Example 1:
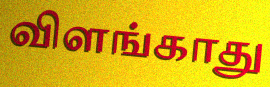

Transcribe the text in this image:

விளங்காது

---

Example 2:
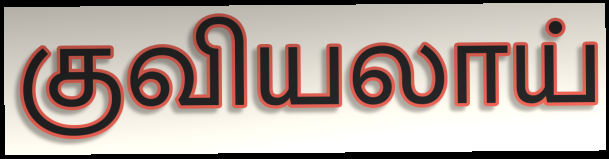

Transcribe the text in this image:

குவியலாய்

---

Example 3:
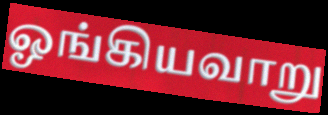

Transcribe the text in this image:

ஓங்கியவாறு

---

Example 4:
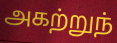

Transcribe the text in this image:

அகற்றுந்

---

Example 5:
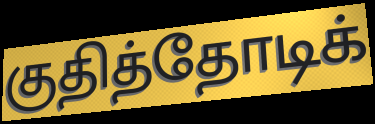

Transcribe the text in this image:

குதித்தோடிக்